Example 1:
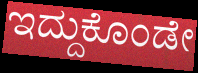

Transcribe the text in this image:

ಇದ್ದುಕೊಂಡೇ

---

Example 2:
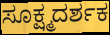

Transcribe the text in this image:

ಸೂಕ್ಷ್ಮದರ್ಶಕ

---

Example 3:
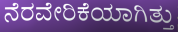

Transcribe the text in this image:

ನೆರವೇರಿಕೆಯಾಗಿತ್ತು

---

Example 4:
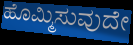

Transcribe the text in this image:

ಹೊಮ್ಮಿಸುವುದೇ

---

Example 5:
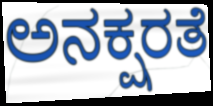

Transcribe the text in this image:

ಅನಕ್ಷರತೆ